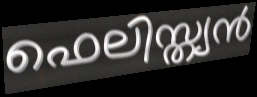
ഫെലിസ്ത്യൻ